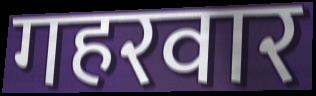
गहरवार